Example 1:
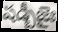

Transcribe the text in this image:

షడ్బీజైః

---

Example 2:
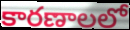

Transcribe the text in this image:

కారణాలలో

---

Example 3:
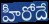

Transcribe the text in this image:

హీరోదే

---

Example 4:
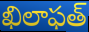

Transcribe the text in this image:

ఖిలాఫత్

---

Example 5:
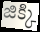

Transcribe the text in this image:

జిక్కి